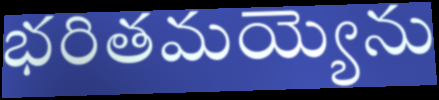
భరితమయ్యెను